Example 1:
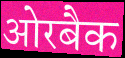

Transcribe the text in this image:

ओरबैक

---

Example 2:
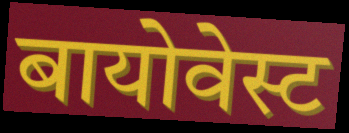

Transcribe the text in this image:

बायोवेस्ट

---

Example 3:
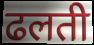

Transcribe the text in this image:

ढलती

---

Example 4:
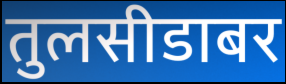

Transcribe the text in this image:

तुलसीडाबर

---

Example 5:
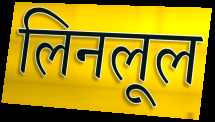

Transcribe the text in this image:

लिनलूल